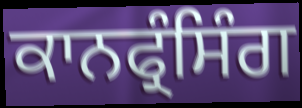
ਕਾਨਫ੍ਰੰਸਿੰਗ